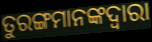
ତୁରଙ୍ଗମାନଙ୍କଦ୍ୱାରା